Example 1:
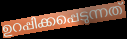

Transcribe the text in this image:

ഉറപ്പിക്കപ്പെടുന്നത്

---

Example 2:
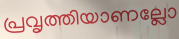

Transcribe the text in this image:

പ്രവൃത്തിയാണല്ലോ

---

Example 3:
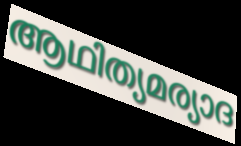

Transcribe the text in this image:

ആഥിത്യമര്യാദ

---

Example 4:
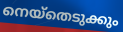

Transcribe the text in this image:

നെയ്തെടുക്കും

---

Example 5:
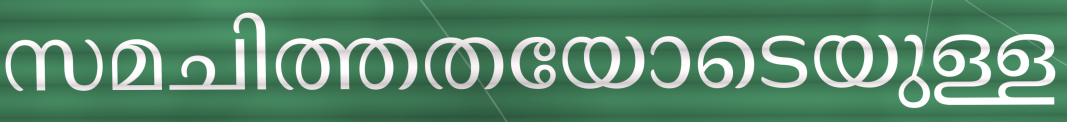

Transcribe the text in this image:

സമചിത്തതയോടെയുള്ള